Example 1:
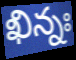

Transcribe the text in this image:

ఖిన్నః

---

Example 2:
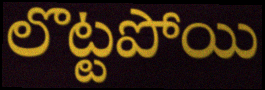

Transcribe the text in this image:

లొట్టపోయి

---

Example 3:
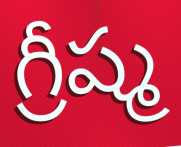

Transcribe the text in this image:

గ్రీష్మ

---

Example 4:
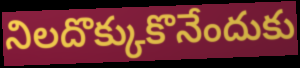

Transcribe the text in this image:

నిలదొక్కుకొనేందుకు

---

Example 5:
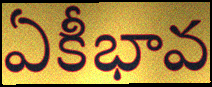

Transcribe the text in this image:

ఏకీభావ